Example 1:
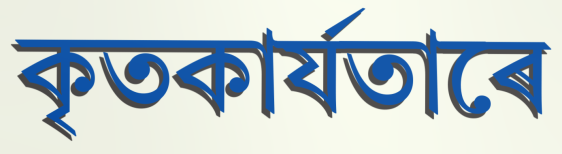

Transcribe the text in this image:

কৃতকাৰ্যতাৰে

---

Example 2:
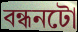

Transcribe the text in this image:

বন্ধনটো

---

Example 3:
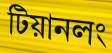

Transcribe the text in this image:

টিয়ানলং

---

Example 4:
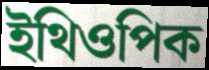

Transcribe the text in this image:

ইথিওপিক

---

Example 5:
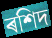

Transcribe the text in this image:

ৰশিদ